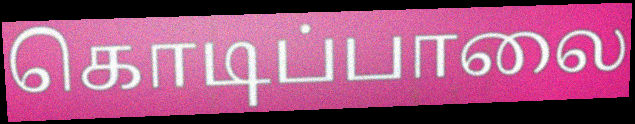
கொடிப்பாலை